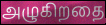
அழுகிறதை